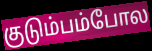
குடும்பம்போல